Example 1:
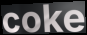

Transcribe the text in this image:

coke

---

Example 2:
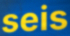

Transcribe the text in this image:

seis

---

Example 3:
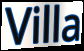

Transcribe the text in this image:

Villa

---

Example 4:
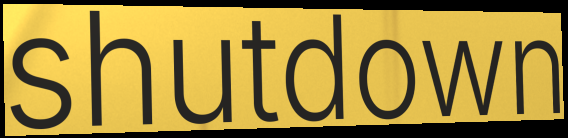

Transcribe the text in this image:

shutdown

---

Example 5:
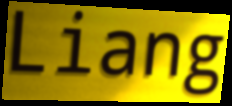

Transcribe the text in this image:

Liang